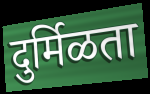
दुर्मिळता